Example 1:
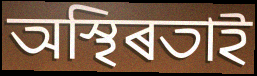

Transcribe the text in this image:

অস্থিৰতাই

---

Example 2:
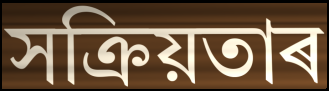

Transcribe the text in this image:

সক্ৰিয়তাৰ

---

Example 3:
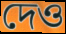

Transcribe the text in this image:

দেও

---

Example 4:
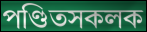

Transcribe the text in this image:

পণ্ডিতসকলক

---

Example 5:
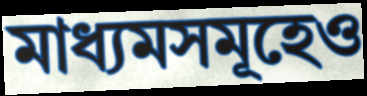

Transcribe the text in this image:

মাধ্য়মসমূহেও